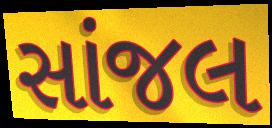
સાંજલ